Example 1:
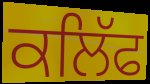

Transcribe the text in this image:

ਕਲਿੱਫ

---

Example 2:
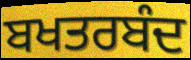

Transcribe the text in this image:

ਬਖਤਰਬੰਦ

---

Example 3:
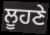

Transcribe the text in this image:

ਲੂਹਣੇ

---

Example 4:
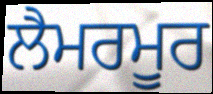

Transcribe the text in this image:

ਲੈਮਰਮੂਰ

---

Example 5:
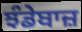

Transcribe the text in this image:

ਝੰਡੇਬਾਜ਼